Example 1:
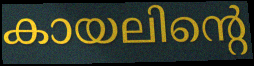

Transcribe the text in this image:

കായലിന്റെ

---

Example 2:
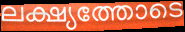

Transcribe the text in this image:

ലക്ഷ്യത്തോടെ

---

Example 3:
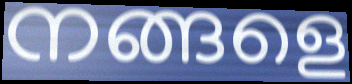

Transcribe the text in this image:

നങ്ങളെ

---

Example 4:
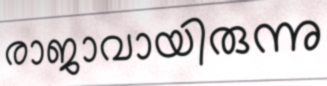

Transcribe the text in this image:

രാജാവായിരുന്നു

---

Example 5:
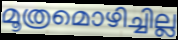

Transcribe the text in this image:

മൂത്രമൊഴിച്ചില്ല